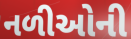
નળીઓની